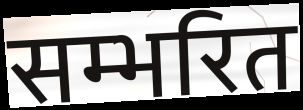
सम्भरित